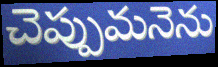
చెప్పుమనెను